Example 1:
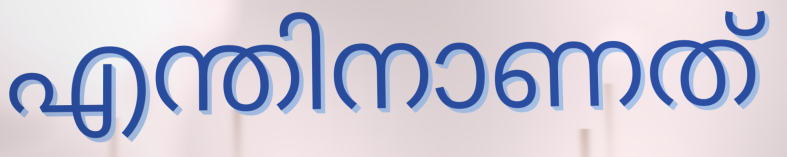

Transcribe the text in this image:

എന്തിനാണത്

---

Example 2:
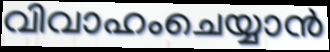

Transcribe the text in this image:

വിവാഹംചെയ്യാൻ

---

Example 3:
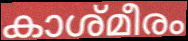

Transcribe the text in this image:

കാശ്മീരം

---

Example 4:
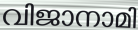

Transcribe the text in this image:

വിജാനാമി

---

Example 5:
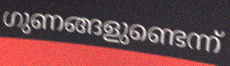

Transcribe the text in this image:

ഗുണങ്ങളുണ്ടെന്ന്